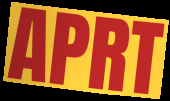
APRT